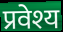
प्रवेश्य